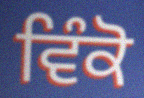
ਵਿੰਕੋ